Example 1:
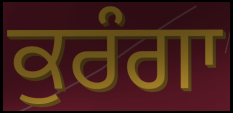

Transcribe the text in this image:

ਕੁਰੰਗਾ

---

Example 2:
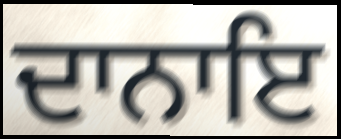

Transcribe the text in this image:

ਦਾਨਾਇ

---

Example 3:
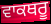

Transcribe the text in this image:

ਵਾਕਥਰੂ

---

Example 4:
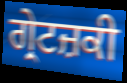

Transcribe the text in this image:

ਗ੍ਰੇਟਜ਼ਕੀ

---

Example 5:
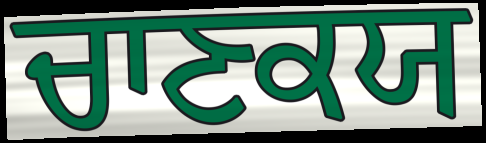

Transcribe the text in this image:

ਚਾਣਕਯ